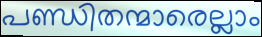
പണ്ഡിതന്മാരെല്ലാം